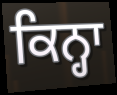
ਕਿਨ੍ਹਾ